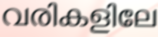
വരികളിലേ